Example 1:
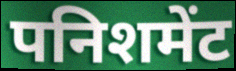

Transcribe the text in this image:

पनिशमेंट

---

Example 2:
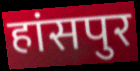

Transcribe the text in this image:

हांसपुर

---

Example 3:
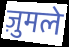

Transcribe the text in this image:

ज़ुमले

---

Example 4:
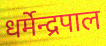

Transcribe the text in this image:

धर्मेन्द्रपाल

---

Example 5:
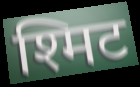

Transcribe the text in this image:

श्मिट